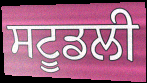
ਸਟੂਡਲੀ